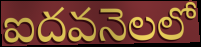
ఐదవనెలలో